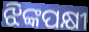
ଝିଙ୍କପକ୍ଷୀ